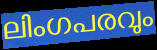
ലിംഗപരവും